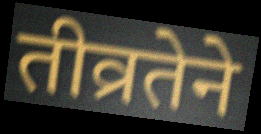
तीव्रतेने